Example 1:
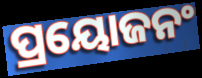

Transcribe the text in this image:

ପ୍ରୟୋଜନଂ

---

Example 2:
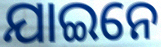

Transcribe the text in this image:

ଯାଇନେ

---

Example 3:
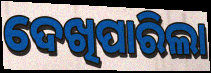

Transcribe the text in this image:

ଦେଖିପାରିଲା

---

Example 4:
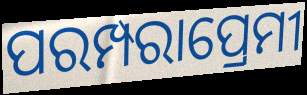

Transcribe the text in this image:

ପରମ୍ପରାପ୍ରେମୀ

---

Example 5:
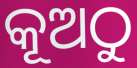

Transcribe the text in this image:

କୂଅଠୁ